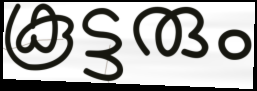
കൂട്ടരും